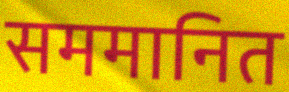
सममानित